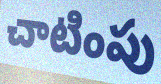
చాటింపు